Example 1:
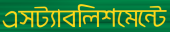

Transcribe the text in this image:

এসট্যাবলিশমেন্টে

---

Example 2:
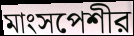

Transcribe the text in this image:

মাংসপেশীর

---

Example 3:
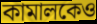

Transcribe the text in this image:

কামালকেও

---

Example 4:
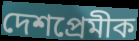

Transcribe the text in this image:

দেশপ্রেমীক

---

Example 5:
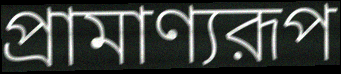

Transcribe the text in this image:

প্রামাণ্যরূপ